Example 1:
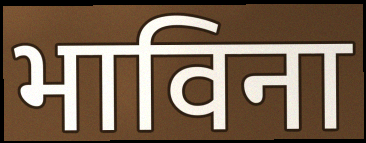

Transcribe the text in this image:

भाविना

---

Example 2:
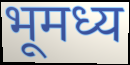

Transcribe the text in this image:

भूमध्य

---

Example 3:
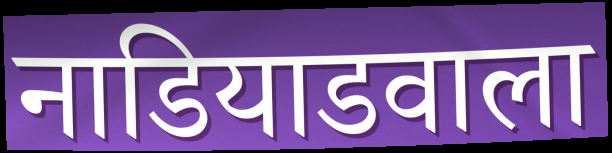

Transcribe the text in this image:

नाडियाडवाला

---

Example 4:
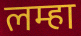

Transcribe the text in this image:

लम्हा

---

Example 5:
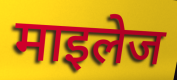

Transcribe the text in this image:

माइलेज